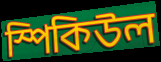
স্পিকিউল